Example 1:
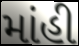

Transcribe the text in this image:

માંહી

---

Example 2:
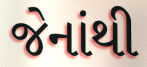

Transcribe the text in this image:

જેનાંથી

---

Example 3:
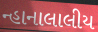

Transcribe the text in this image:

ન્હાનાલાલીય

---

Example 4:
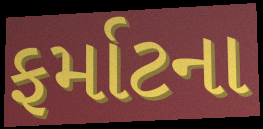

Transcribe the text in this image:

ફર્માટના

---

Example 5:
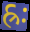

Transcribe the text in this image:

હ્રઃ